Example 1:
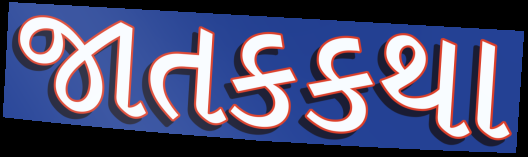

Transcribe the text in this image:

જાતકકથા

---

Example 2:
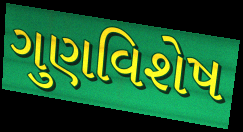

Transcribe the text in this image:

ગુણવિશેષ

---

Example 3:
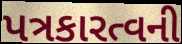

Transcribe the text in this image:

પત્રકારત્વની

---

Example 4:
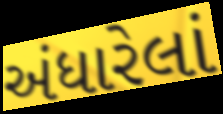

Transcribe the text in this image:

અંધારેલાં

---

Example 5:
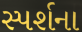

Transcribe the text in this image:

સ્પર્શના